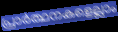
പ്രാർത്ഥനകളെല്ലാം